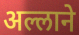
अल्लाने